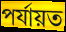
পৰ্যায়ত